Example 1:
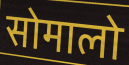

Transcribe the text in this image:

सोमालो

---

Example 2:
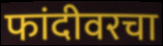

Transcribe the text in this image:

फांदीवरचा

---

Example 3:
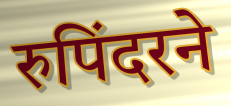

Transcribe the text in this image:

रुपिंदरने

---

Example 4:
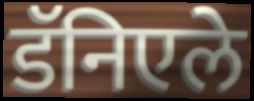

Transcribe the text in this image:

डॅनिएले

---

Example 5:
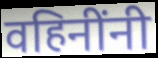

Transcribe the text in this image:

वहिनींनी